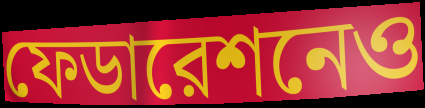
ফেডারেশনেও